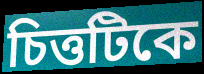
চিত্তটিকে